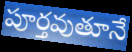
పూర్తవుతూనే